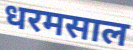
धरमसाल